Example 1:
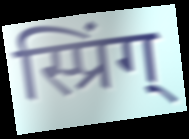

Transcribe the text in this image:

स्प्रिंग्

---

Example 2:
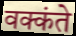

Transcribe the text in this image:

वक्कंते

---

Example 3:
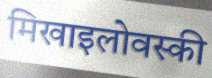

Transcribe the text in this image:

मिखाइलोवस्की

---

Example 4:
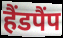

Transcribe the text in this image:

हैंडपैंप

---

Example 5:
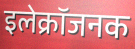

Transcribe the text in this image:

इलेक्रॉजनक